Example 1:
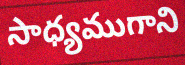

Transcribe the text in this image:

సాధ్యముగాని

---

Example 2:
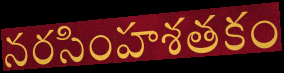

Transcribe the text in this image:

నరసింహశతకం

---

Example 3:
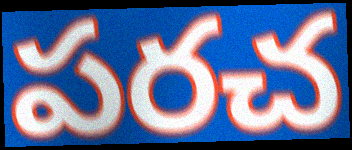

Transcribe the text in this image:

పరచ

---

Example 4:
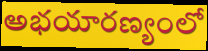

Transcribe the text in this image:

అభయారణ్యంలో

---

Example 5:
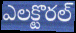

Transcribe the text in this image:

ఎలక్టొరల్